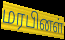
மரபினள்